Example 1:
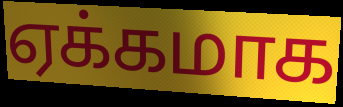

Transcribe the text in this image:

ஏக்கமாக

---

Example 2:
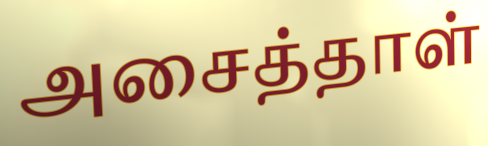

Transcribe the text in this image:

அசைத்தாள்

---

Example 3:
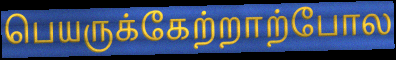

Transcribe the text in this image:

பெயருக்கேற்றாற்போல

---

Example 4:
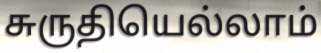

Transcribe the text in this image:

சுருதியெல்லாம்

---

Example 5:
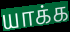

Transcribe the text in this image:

யாக்க